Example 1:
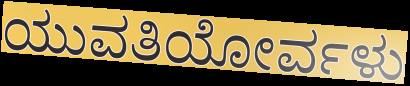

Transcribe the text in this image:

ಯುವತಿಯೋರ್ವಳು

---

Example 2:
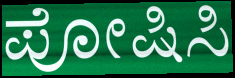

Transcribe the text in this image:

ಪೋಷಿಸಿ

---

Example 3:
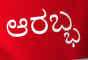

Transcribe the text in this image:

ಆರಬ್ಭ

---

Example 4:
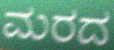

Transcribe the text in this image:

ಮರದ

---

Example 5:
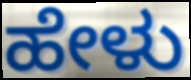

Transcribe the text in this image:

ಹೇಳು